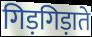
गिड़गिड़ाते